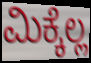
ಮಿಕ್ಕೆಲ್ಲ